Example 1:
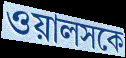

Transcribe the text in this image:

ওয়ালসকে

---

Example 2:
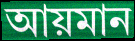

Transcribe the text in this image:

আয়মান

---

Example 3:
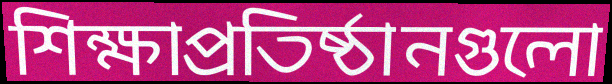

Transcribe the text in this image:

শিক্ষাপ্রতিষ্ঠানগুলো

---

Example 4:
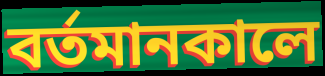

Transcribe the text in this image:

বর্তমানকালে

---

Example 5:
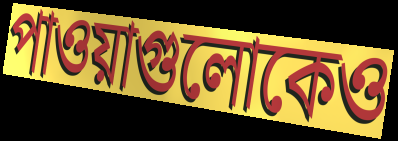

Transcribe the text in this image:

পাওয়াগুলোকেও